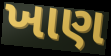
ખાણ